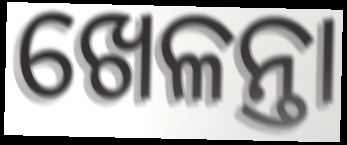
ଖେଳନ୍ତା